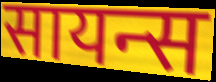
सायन्स